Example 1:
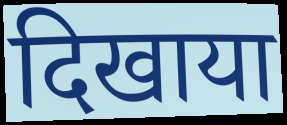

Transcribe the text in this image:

दिखाया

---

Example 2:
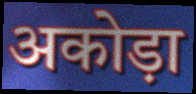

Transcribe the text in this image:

अकोड़ा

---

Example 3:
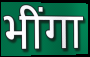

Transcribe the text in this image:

भींगा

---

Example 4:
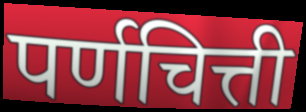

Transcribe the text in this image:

पर्णचित्ती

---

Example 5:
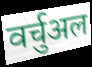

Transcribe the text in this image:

वर्चुअल